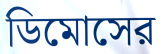
ডিমোসের